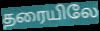
தரையிலே